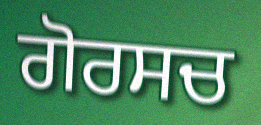
ਗੋਰਸਚ